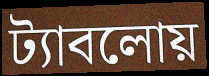
ট্যাবলোয়